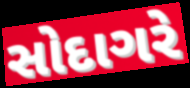
સોદાગરે